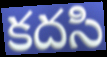
కదసి